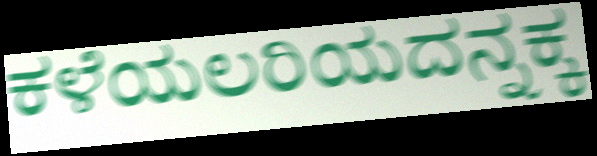
ಕಳೆಯಲರಿಯದನ್ನಕ್ಕ